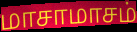
மாசாமாசம்